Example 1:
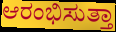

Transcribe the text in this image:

ಆರಂಭಿಸುತ್ತಾ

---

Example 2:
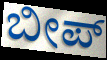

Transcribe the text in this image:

ಬೀಪ್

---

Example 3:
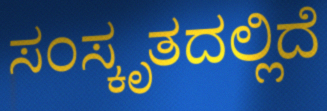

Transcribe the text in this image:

ಸಂಸ್ಕೃತದಲ್ಲಿದೆ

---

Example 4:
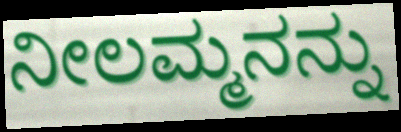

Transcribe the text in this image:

ನೀಲಮ್ಮನನ್ನು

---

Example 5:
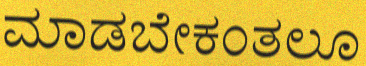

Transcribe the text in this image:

ಮಾಡಬೇಕಂತಲೂ